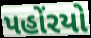
પહોંરયો